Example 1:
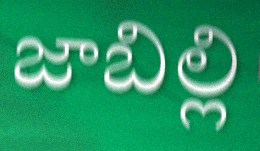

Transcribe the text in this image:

జాబిల్లి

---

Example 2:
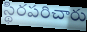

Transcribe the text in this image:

స్థిరపరిచారు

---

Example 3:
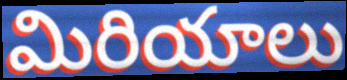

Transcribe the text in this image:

మిరియాలు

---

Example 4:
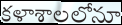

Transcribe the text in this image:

కళాశాలలోనూ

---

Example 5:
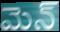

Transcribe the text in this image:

మెన్